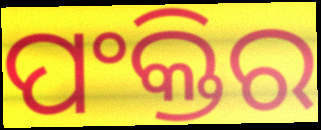
ପଂକ୍ତିର